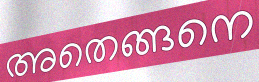
അതെങ്ങനെ